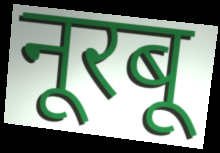
नूरबू